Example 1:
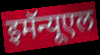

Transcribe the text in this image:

इमॅन्यूएल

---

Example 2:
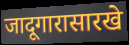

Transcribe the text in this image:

जादूगारासारखे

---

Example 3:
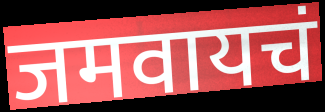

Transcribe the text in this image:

जमवायचं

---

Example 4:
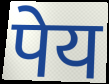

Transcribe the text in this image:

पेय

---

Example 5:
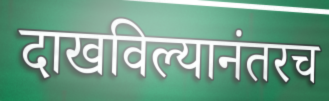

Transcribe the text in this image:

दाखविल्यानंतरच